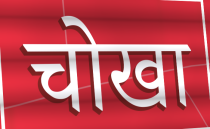
चोखा